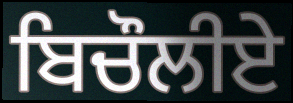
ਬਿਚੌਲੀਏ